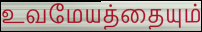
உவமேயத்தையும்